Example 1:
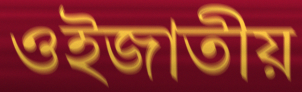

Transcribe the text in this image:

ওইজাতীয়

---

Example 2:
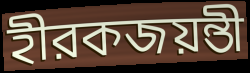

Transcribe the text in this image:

হীরকজয়ন্তী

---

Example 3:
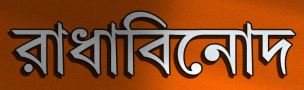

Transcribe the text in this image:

রাধাবিনোদ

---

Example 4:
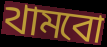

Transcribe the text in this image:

থামবো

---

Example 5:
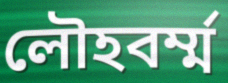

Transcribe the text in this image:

লৌহবর্ম্ম